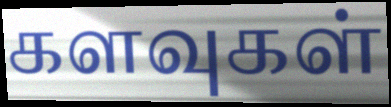
களவுகள்